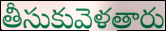
తీసుకువెళతారు